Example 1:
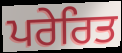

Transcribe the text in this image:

ਪਰੇਰਿਤ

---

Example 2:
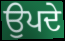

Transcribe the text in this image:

ਉਪਦੇ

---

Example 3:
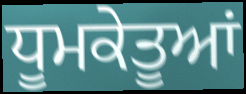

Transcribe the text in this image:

ਧੂਮਕੇਤੂਆਂ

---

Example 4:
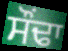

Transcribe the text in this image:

ਸੌਂਢਾ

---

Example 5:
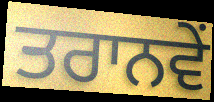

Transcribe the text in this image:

ਤਰਾਨਵੇਂ